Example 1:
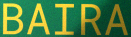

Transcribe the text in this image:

BAIRA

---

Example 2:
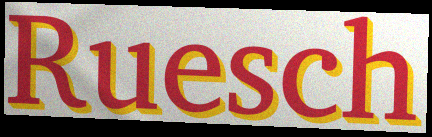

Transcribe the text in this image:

Ruesch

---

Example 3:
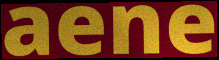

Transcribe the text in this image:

aene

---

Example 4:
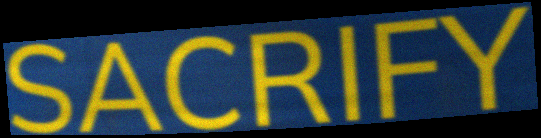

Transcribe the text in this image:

SACRIFY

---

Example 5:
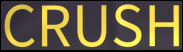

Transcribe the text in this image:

CRUSH